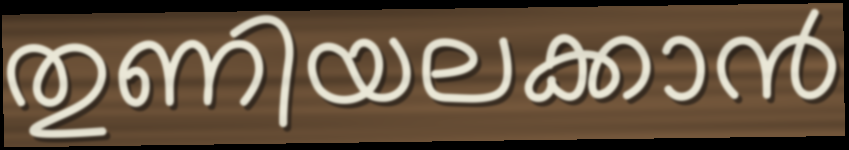
തുണിയലക്കാൻ